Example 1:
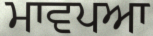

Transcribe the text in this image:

ਮਾਵਪਆ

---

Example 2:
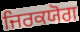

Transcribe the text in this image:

ਜਿਰਕਯੋਗ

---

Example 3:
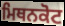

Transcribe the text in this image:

ਮਿਥਨਕੋਟ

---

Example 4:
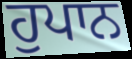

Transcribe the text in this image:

ਹੁਪਾਨ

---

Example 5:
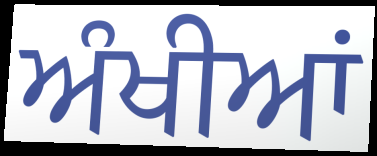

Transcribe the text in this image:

ਅੰਖੀਆਂ